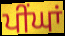
ਪੀਂਘਾਂ